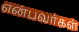
என்பவர்கள்